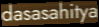
dasasahitya